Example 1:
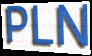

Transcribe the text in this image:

PLN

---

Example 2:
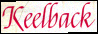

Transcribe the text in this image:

Keelback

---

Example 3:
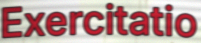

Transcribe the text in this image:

Exercitatio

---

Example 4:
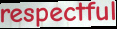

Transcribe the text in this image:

respectful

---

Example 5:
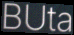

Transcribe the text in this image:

BUta